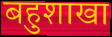
बहुशाखा